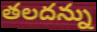
తలదన్ను